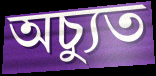
অচ্যুত